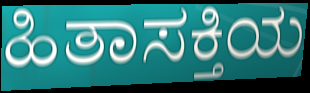
ಹಿತಾಸಕ್ತಿಯ